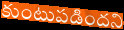
కుంటుపడిందని